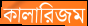
কালারিজম